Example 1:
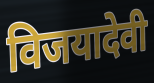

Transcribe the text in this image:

विजयादेवी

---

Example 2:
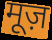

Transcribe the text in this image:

मूज़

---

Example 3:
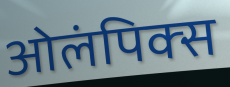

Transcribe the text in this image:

ओलंपिक्‍स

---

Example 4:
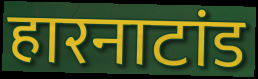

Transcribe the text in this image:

हारनाटांड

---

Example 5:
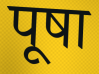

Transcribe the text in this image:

पूषा